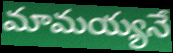
మామయ్యనే